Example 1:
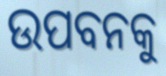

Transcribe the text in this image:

ଉପବନକୁ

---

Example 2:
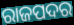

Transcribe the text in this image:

ରାଜପଦର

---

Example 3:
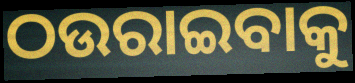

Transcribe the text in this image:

ଠଉରାଇବାକୁ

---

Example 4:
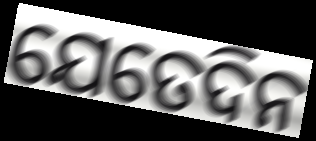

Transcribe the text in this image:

ଯେତେଦିନ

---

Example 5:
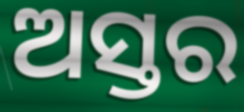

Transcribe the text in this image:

ଅସ୍ତର